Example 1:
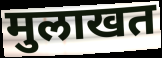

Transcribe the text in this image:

मुलाखत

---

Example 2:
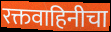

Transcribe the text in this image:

रक्तवाहिनीचा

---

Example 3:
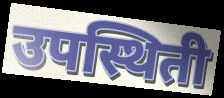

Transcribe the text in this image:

उपस्थिती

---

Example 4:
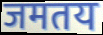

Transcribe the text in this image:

जमतय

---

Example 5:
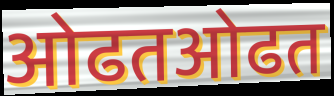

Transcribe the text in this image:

ओढतओढत